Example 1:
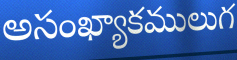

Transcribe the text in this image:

అసంఖ్యాకములుగ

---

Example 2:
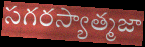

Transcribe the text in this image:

సగరస్యాత్మజా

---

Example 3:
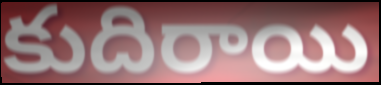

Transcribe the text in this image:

కుదిరాయి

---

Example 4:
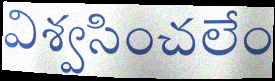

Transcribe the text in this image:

విశ్వసించలేం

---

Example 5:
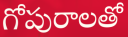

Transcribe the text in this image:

గోపురాలతో